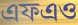
এফএও